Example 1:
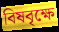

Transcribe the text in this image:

বিষবৃক্ষে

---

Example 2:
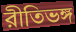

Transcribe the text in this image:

রীতিভঙ্গ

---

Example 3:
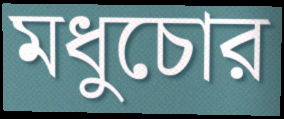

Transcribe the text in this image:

মধুচোর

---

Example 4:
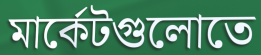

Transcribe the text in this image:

মার্কেটগুলোতে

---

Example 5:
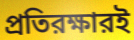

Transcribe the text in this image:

প্রতিরক্ষারই